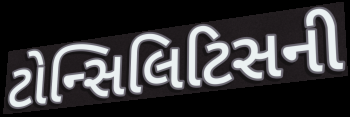
ટોન્સિલિટિસની